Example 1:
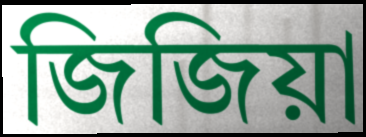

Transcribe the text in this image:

জিজিয়া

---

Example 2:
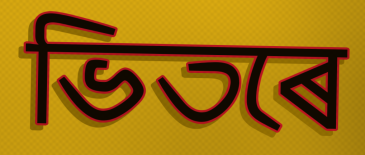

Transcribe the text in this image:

ভিতৰে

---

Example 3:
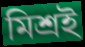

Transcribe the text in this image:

মিশ্ৰই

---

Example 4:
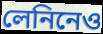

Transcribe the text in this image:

লেনিনেও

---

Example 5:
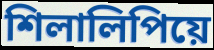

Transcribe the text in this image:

শিলালিপিয়ে